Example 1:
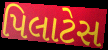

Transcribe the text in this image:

પિલાટેસ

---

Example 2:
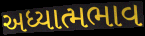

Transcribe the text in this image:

અધ્યાત્મભાવ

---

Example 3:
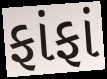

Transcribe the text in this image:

ફાંફાં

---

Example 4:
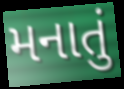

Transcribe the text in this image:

મનાતું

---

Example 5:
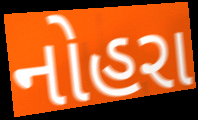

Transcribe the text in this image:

નોહરા